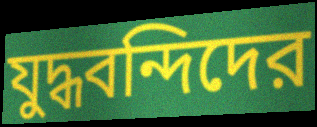
যুদ্ধবন্দিদের